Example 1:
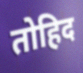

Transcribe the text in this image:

तोहिद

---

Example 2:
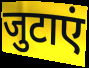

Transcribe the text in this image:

जुटाएं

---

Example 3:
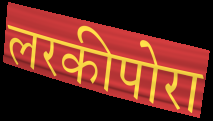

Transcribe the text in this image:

लरकीपोरा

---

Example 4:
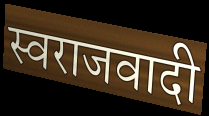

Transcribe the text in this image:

स्वराजवादी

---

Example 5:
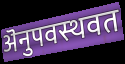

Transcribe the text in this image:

ऄनुपवस्थवत